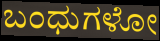
ಬಂಧುಗಳೋ